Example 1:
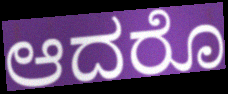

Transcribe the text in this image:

ಆದರೊ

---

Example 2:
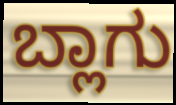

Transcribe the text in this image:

ಬ್ಲಾಗು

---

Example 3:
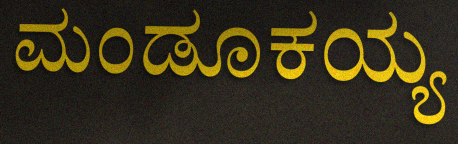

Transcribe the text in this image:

ಮಂಡೂಕಯ್ಯ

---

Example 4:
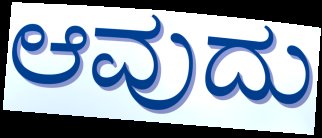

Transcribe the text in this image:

ಆವುದು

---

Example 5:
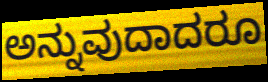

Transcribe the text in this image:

ಅನ್ನುವುದಾದರೂ